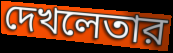
দেখলেতার